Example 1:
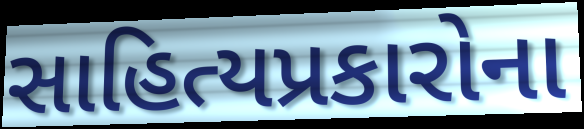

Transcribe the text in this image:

સાહિત્યપ્રકારોના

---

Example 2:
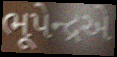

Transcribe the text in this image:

ભૂપેન્દ્રએ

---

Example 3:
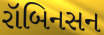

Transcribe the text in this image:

રૉબિનસન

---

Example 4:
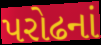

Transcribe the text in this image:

પરોઢનાં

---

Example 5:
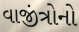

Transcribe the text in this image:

વાજીંત્રોનો